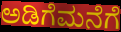
ಅಡಿಗೆಮನೆಗೆ